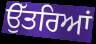
ਉੱਤਰਿਆਂ